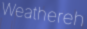
Weathereh